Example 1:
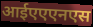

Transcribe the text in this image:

आईएएएनएस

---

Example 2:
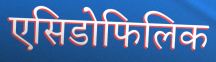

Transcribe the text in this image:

एसिडोफिलिक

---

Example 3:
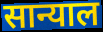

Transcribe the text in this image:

सान्याल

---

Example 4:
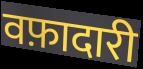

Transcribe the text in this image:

वफ़ादारी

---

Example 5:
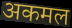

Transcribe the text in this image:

अकमल